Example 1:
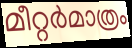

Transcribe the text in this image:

മീറ്റർമാത്രം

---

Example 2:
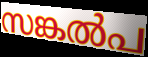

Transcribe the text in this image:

സങ്കൽപ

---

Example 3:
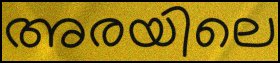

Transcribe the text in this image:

അരയിലെ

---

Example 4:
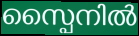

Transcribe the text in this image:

സ്പൈനിൽ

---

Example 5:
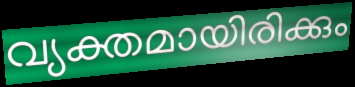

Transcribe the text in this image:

വ്യക്തമായിരിക്കും